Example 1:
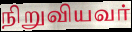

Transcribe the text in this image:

நிறுவியவர்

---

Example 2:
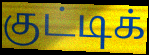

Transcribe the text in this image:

குட்டிக்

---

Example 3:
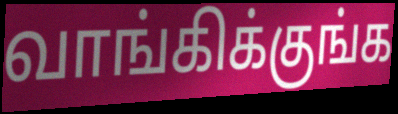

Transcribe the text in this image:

வாங்கிக்குங்க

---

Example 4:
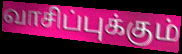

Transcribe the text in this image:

வாசிப்புக்கும்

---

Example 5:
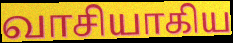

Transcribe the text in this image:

வாசியாகிய